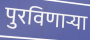
पुरविणार्‍या